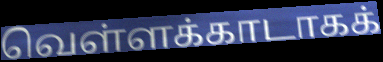
வெள்ளக்காடாகக்